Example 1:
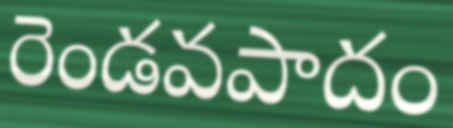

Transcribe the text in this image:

రెండవపాదం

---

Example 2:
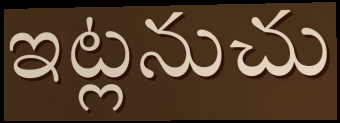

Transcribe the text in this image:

ఇట్లనుచు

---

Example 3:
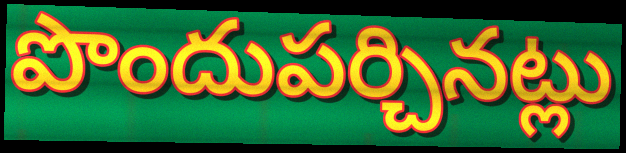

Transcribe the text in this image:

పొందుపర్చినట్లు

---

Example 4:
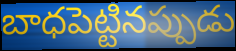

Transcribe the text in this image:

బాధపెట్టినప్పుడు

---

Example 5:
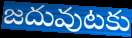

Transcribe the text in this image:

జదువుటకు